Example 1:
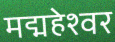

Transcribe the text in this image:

मद्महेश्वर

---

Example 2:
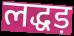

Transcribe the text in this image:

लद्धड़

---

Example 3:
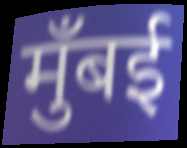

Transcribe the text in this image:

मुँबई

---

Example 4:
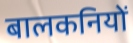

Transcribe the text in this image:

बालकनियों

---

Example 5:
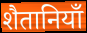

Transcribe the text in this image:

शैतानियाँ